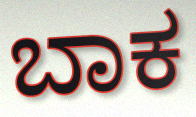
ಬಾಕ